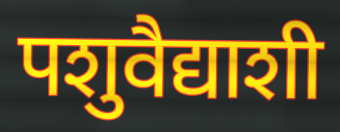
पशुवैद्याशी